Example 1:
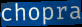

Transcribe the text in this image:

chopra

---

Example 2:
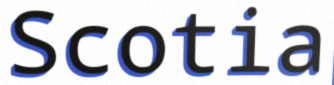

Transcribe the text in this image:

Scotia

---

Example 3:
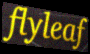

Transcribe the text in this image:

flyleaf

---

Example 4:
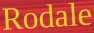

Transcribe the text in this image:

Rodale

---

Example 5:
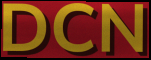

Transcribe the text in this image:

DCN